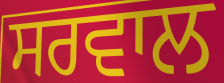
ਸਰਵਾਲ